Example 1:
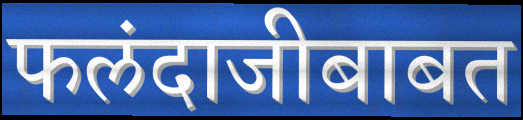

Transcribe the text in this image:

फलंदाजीबाबत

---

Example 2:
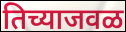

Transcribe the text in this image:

तिच्याजवळ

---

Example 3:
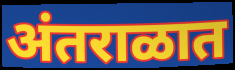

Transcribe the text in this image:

अंतराळात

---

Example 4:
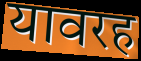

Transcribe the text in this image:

यावरह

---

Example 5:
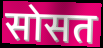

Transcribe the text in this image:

सोसत